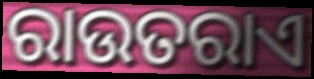
ରାଉତରାଏ